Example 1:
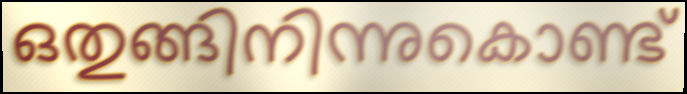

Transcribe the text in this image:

ഒതുങ്ങിനിന്നുകൊണ്ട്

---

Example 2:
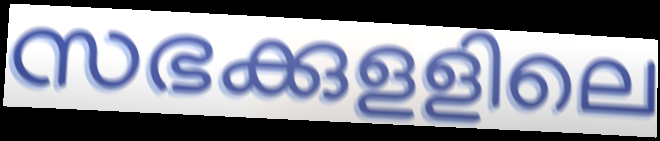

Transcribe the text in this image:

സഭക്കുളളിലെ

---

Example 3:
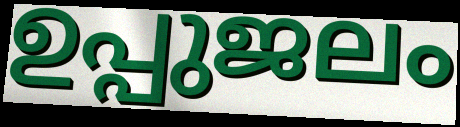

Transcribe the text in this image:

ഉപ്പുജലം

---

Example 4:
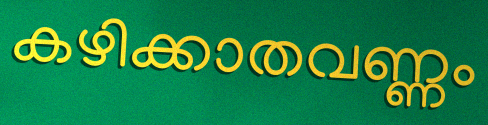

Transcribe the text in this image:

കഴിക്കാതവണ്ണം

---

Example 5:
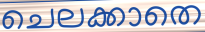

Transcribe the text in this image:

ചെലക്കാതെ